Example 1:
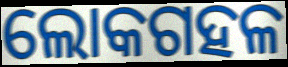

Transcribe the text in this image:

ଲୋକଗହଳ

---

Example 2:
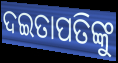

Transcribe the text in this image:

ଦଇତାପତିଙ୍କୁ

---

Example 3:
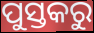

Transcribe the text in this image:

ପୁସ୍ତକରୁ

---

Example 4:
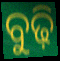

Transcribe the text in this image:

ବୁଢ଼ି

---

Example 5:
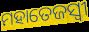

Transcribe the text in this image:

ମହାତେଜସ୍ୱୀ